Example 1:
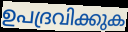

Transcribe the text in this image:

ഉപദ്രവിക്കുക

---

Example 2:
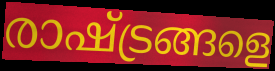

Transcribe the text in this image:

രാഷ്ട്രങ്ങളെ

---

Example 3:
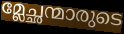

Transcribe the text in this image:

മ്ലേച്ഛന്മാരുടെ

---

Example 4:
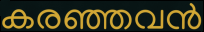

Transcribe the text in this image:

കരഞ്ഞവൻ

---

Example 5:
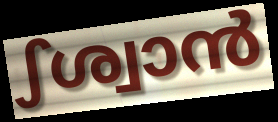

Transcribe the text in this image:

ഽശ്വാൻ